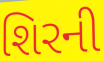
શિરની